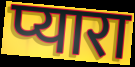
प्‍यारा